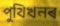
পুথিখনৰ